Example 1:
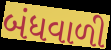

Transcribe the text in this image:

બંધવાળી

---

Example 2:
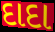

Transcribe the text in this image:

દાદા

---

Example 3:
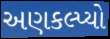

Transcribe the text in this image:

અણકલ્પ્યો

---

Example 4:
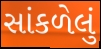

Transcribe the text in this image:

સાંકળેલું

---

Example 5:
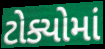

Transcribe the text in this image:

ટોક્યોમાં